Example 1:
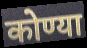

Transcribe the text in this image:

कोण्या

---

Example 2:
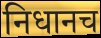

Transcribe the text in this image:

निधानच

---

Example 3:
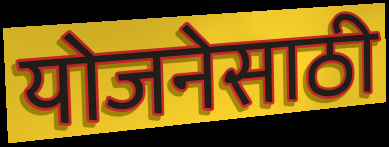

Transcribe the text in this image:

योजनेसाठी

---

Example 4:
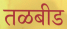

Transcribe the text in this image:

तळबीड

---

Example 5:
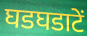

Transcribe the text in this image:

घडघडाटें